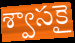
శ్వాసకై